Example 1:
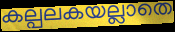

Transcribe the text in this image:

കല്പലകയല്ലാതെ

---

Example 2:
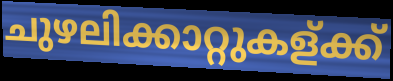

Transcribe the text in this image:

ചുഴലിക്കാറ്റുകള്ക്ക്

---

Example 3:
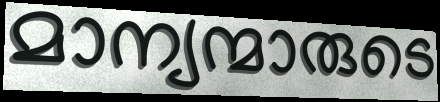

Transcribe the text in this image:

മാന്യന്മാരുടെ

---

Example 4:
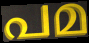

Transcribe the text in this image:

പമ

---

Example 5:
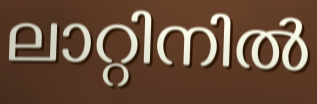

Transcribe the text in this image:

ലാറ്റിനിൽ